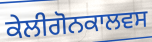
ਕੇਲੀਗੋਨਕਾਲਵਸ